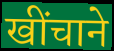
खींचाने